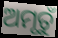
ଅମୃତୁଁ